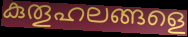
കുതൂഹലങ്ങളെ